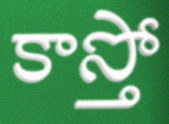
కాస్తో